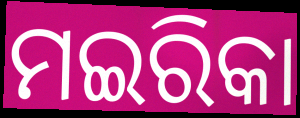
ମଇରିକା